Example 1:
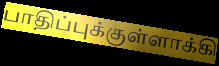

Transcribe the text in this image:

பாதிப்புக்குள்ளாக்கி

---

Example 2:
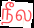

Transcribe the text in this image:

நீல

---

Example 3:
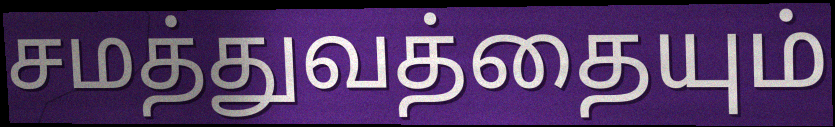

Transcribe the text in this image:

சமத்துவத்தையும்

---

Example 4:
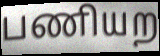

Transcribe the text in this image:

பணியற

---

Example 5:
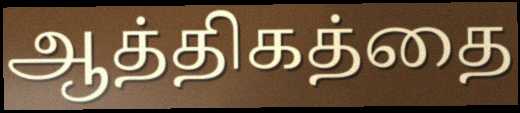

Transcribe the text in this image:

ஆத்திகத்தை